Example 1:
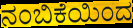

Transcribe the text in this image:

ನಂಬಿಕೆಯಿಂದ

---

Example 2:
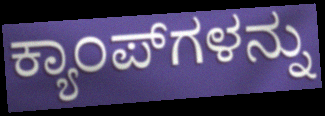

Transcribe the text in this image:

ಕ್ಯಾಂಪ್‍ಗಳನ್ನು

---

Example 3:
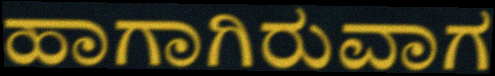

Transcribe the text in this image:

ಹಾಗಾಗಿರುವಾಗ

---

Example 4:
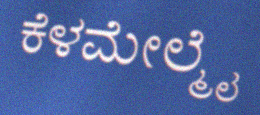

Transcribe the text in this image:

ಕೆಳಮೇಲ್ಮೈ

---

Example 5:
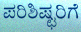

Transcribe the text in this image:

ಪರಿಶಿಷ್ಟರಿಗೆ